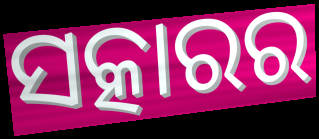
ସତ୍କାରର